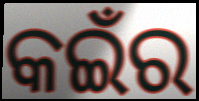
କଇଁର